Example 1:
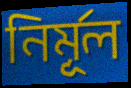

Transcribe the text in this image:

নির্মূল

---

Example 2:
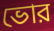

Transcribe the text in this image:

ভোর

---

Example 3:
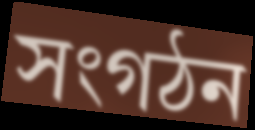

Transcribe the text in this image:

সংগঠন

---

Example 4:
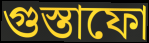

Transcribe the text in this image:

গুস্তাফো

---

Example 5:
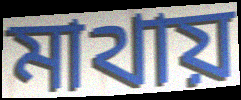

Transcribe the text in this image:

মাথায়